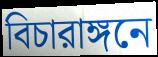
বিচারাঙ্গনে